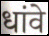
धांवे